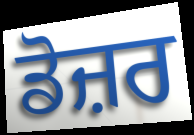
ਡੋਜ਼ਰ